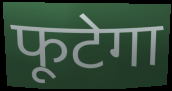
फूटेगा